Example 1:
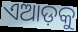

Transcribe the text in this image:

ଏଆଡ଼କୁ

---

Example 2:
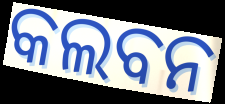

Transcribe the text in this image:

କଲବନ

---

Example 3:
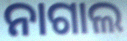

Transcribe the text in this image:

ନାଗାଲ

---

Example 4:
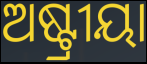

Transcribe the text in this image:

ଅଷ୍ଟ୍ରୀୟା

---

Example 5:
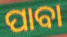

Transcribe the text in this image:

ପାବା